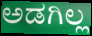
ಅಡಗಿಲ್ಲ